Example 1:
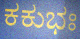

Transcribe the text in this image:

ಕಕುಭಃ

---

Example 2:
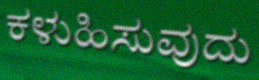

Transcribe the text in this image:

ಕಳುಹಿಸುವುದು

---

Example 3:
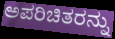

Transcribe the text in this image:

ಅಪರಿಚಿತರನ್ನು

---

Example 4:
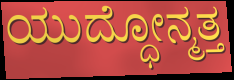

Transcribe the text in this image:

ಯುದ್ಧೋನ್ಮತ್ತ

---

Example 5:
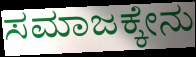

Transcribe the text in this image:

ಸಮಾಜಕ್ಕೇನು